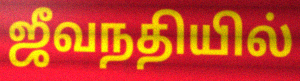
ஜீவநதியில்